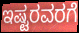
ಇಷ್ಟರವರಗೆ